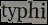
typhi